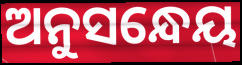
ଅନୁସନ୍ଧେୟ